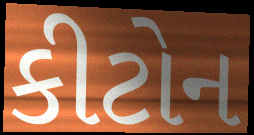
કીટોન